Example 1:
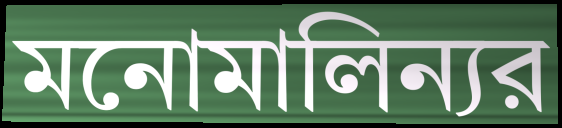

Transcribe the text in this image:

মনোমালিন্যর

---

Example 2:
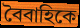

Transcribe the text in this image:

বৈবাহিকে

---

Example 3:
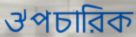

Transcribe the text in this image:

ঔপচারিক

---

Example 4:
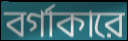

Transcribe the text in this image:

বর্গাকারে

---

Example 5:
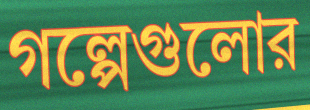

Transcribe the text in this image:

গল্পেগুলোর